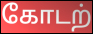
கோடற்